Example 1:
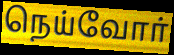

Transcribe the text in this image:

நெய்வோர்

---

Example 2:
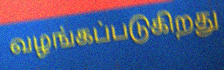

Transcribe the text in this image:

வழங்கப்படுகிறது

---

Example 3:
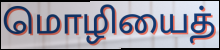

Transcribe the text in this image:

மொழியைத்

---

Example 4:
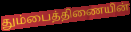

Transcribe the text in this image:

தும்பைத்திணையின்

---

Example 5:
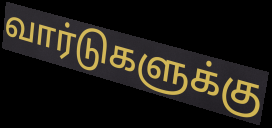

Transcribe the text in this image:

வார்டுகளுக்கு